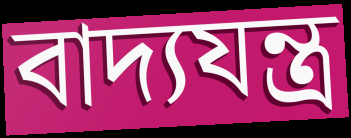
বাদ্যযন্ত্ৰ